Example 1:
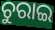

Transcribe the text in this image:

ଚୁରାଇ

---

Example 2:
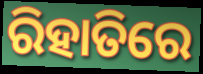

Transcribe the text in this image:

ରିହାତିରେ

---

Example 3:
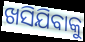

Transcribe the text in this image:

ଖସିଯିବାକୁ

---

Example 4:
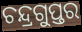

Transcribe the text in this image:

ଚନ୍ଦ୍ରଗୁପ୍ତର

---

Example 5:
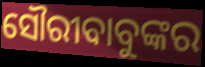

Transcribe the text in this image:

ସୌରୀବାବୁଙ୍କର